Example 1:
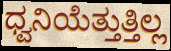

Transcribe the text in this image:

ಧ್ವನಿಯೆತ್ತುತ್ತಿಲ್ಲ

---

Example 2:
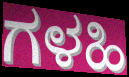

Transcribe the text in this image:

ಗಳಹಿ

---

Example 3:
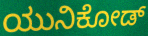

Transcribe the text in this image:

ಯುನಿಕೋಡ್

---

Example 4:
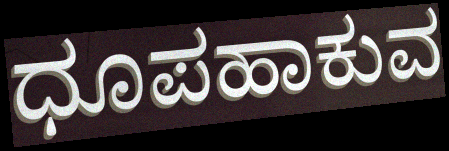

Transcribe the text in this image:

ಧೂಪಹಾಕುವ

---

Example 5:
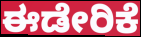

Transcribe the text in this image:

ಈಡೇರಿಕೆ